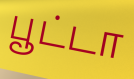
பூட்டா